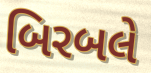
બિરબલે